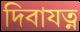
দিবাযত্ন